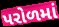
પરોળમાં